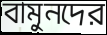
বামুনদের